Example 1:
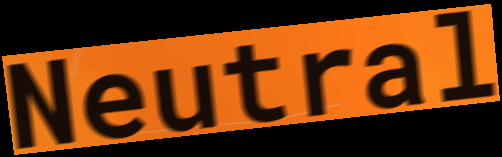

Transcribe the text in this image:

Neutral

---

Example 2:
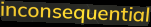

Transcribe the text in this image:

inconsequential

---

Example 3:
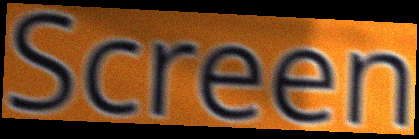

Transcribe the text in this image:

Screen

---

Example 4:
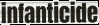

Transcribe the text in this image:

infanticide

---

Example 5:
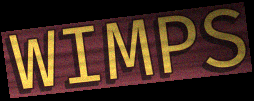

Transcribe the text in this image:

WIMPS